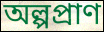
অল্পপ্রাণ